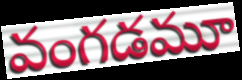
వంగడమూ